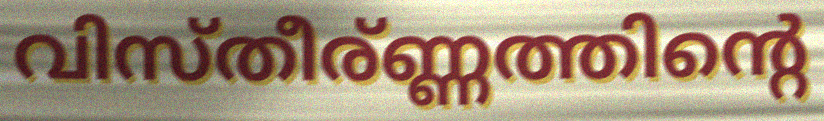
വിസ്തീര്ണ്ണത്തിന്റെ